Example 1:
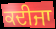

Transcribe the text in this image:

ਕਦੀਜਾ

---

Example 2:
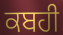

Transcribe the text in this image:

ਕਬਹੀ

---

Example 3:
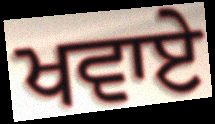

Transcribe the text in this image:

ਖਵਾਏ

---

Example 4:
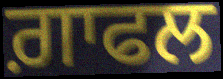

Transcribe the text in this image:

ਗ਼ਾਫਲ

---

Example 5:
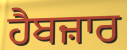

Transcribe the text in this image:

ਹੈਬਜ਼ਾਰ